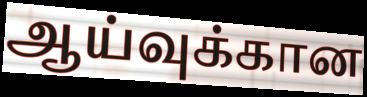
ஆய்வுக்கான